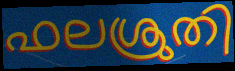
ഫലശ്രുതി